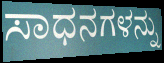
ಸಾಧನಗಳನ್ನು